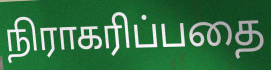
நிராகரிப்பதை